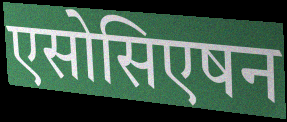
एसोसिएषन